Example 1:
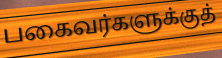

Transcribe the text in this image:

பகைவர்களுக்குத்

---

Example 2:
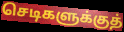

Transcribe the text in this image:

செடிகளுக்குத்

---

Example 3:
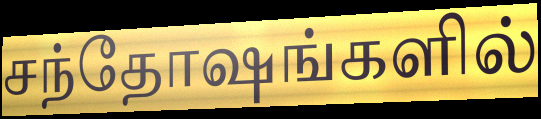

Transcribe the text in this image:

சந்தோஷங்களில்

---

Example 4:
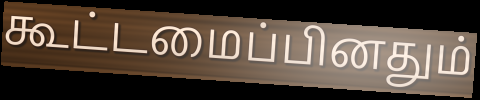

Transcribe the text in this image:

கூட்டமைப்பினதும்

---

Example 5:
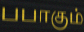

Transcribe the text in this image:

பபாகும்